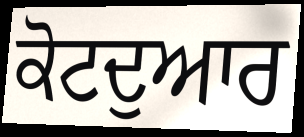
ਕੋਟਦੁਆਰ